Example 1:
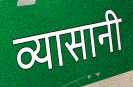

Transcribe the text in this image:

व्यासानी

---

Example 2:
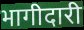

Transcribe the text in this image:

भागीदारी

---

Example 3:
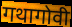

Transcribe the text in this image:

गथागोवी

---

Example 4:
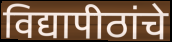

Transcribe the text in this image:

विद्यापीठांचे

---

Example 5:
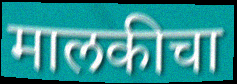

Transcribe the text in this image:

मालकीचा